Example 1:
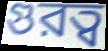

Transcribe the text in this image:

গুরত্ব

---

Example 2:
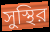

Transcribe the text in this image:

সুস্থির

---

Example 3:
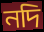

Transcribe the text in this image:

নদি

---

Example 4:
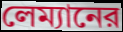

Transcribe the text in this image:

লেম্যানের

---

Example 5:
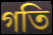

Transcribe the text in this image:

গতি